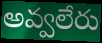
అవ్వలేరు